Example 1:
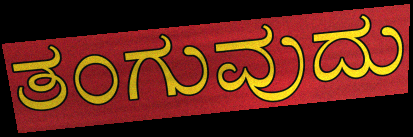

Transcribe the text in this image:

ತಂಗುವುದು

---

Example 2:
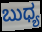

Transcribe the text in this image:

ಬುಧ್ಯ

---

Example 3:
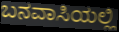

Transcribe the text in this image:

ಬನವಾಸಿಯಲ್ಲಿ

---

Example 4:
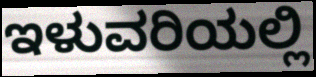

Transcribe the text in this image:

ಇಳುವರಿಯಲ್ಲಿ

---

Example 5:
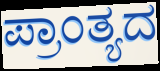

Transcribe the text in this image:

ಪ್ರಾಂತ್ಯದ